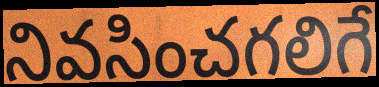
నివసించగలిగే